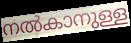
നൽകാനുള്ള